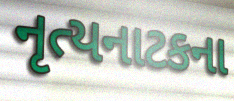
નૃત્યનાટકના